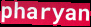
pharyan